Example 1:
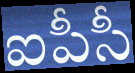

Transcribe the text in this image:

ఐపీసీ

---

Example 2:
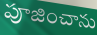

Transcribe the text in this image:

పూజించాను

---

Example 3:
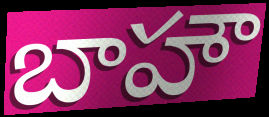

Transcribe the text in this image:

బాహౌ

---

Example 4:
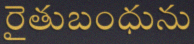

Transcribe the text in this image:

రైతుబంధును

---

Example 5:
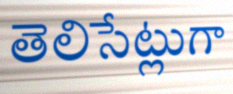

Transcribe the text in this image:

తెలిసేట్లుగా